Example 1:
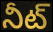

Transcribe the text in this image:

నీట్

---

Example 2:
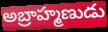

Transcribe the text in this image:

అబ్రాహ్మణుడు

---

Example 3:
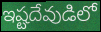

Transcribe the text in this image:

ఇష్టదేవుడిలో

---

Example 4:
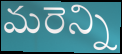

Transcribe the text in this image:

మరెన్ని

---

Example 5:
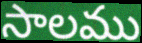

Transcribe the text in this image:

సాలము